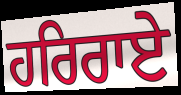
ਹਰਿਰਾਏ